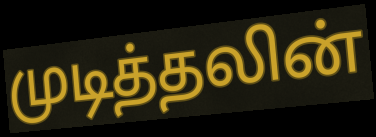
முடித்தலின்